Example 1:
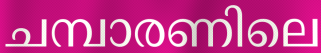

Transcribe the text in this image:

ചമ്പാരണിലെ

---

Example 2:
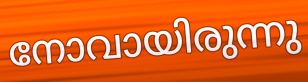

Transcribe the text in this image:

നോവായിരുന്നു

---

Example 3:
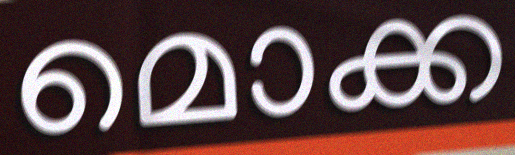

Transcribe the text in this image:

മൊക്ക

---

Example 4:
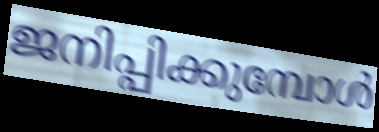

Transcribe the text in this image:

ജനിപ്പിക്കുമ്പോൾ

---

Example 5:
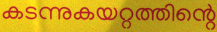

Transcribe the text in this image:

കടന്നുകയറ്റത്തിന്റെ